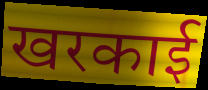
खरकाई